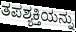
ತಪಶ್ಯಕ್ತಿಯನ್ನು